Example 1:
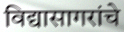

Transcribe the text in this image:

विद्यासागरांचे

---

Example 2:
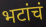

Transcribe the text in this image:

भटांचं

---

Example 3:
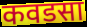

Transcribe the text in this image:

कवडसा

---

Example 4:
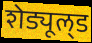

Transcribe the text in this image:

शेड्यूल्ड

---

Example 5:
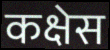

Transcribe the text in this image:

कक्षेस